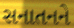
સનાતનને